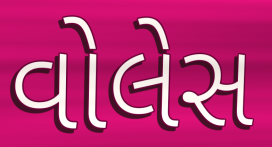
વોલેસ